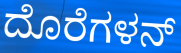
ದೊರೆಗಳನ್